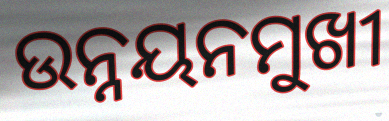
ଉନ୍ନୟନମୁଖୀ